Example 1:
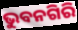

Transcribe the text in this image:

ଭୁବନଗିରି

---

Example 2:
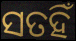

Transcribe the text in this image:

ସତହିଁ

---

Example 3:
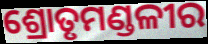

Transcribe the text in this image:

ଶ୍ରୋତୃମଣ୍ଡଳୀର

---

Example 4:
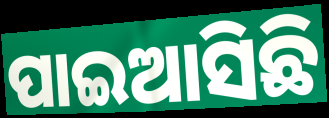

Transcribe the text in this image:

ପାଇଆସିଛି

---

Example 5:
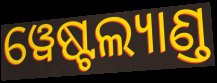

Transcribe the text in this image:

ୱେଷ୍ଟଲ୍ୟାଣ୍ଡ